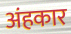
अंहकार